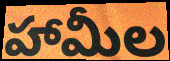
హామీల